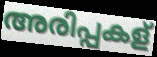
അരിപ്പകള്